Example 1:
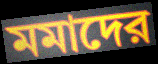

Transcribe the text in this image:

মমাদের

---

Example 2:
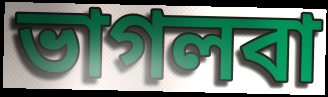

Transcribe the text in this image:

ভাগলবা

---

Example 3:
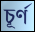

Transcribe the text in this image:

চূর্ণ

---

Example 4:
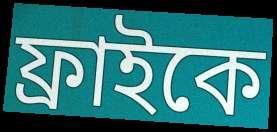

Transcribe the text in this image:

ফ্রাইকে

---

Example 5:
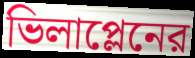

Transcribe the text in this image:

ভিলাপ্লেনের